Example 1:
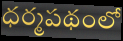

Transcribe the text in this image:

ధర్మపథంలో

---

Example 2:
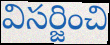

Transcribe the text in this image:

విసర్జించి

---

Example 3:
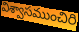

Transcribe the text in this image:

విశ్వాసముంచిరి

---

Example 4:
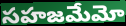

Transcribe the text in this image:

సహజమేమో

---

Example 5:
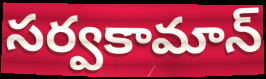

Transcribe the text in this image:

సర్వకామాన్